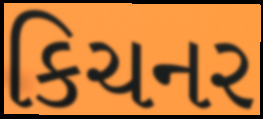
કિચનર